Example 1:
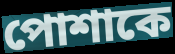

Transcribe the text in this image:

পোশাকে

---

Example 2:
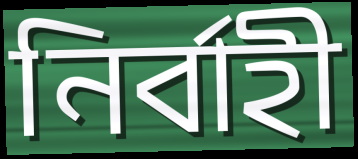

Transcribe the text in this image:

নির্বাহী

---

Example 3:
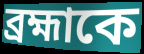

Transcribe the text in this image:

ব্রহ্মাকে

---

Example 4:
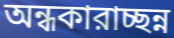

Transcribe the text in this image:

অন্ধকারাচ্ছন্ন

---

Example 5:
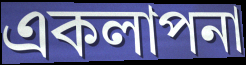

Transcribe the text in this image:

একলাপনা